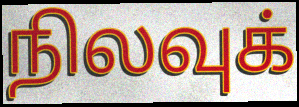
நிலவுக்